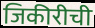
जिकीरीची